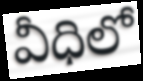
వీధిలో